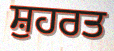
ਸ਼ੁਹਰਤ